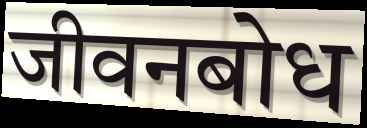
जीवनबोध